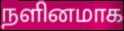
நளினமாக